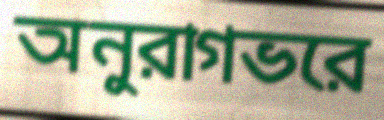
অনুরাগভরে